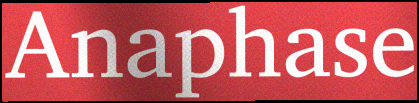
Anaphase